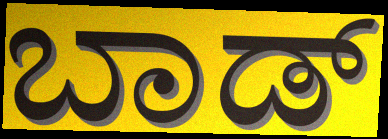
ಬಾಡ್